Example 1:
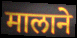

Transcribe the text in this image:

मालाने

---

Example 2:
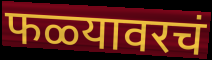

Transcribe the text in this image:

फळ्यावरचं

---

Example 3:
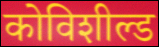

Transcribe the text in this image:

कोविशील्ड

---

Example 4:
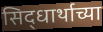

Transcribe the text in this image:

सिद्धार्थाच्या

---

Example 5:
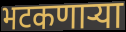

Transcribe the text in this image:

भटकणार्‍या